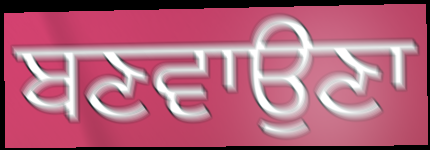
ਬਣਵਾਉਣਾ